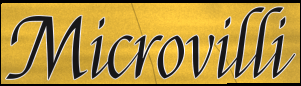
Microvilli